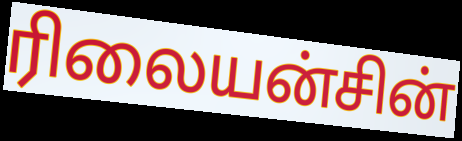
ரிலையன்சின்